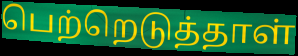
பெற்றெடுத்தாள்